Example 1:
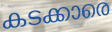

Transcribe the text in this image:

കടക്കാരെ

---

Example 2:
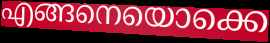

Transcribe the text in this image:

എങ്ങനെയൊക്കെ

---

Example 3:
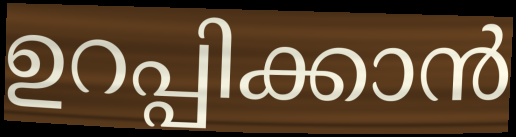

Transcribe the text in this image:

ഉറപ്പിക്കാൻ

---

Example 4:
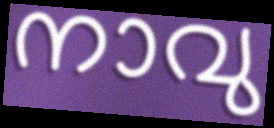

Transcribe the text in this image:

നാവു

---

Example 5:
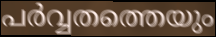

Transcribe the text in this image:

പർവ്വതത്തെയും